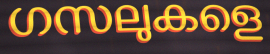
ഗസലുകളെ